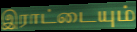
இராட்டையும்